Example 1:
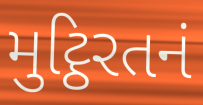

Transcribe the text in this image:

મુટ્ઠિરતનં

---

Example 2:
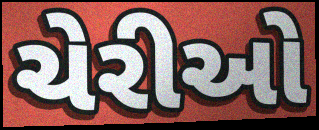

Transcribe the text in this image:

ચેરીઓ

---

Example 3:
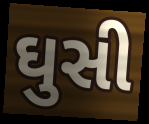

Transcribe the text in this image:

ઘુસી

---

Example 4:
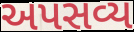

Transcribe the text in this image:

અપસવ્ય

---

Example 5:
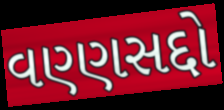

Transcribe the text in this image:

વણ્ણસદ્દો